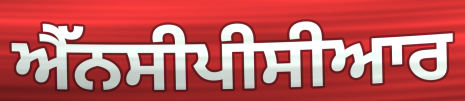
ਐੱਨਸੀਪੀਸੀਆਰ